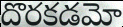
దొరకడమో